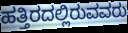
ಹತ್ತಿರದಲ್ಲಿರುವವರು